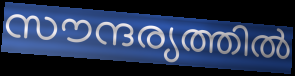
സൗന്ദര്യത്തിൽ